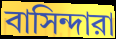
বাসিন্দারা